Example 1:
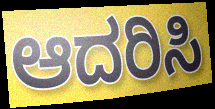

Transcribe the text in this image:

ಆದರಿಸಿ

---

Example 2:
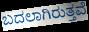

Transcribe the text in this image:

ಬದಲಾಗಿರುತ್ತವೆ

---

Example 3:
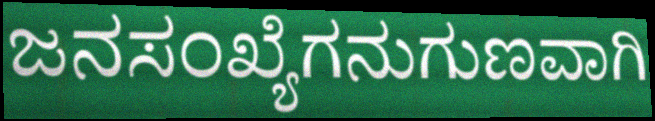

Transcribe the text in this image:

ಜನಸಂಖ್ಯೆಗನುಗುಣವಾಗಿ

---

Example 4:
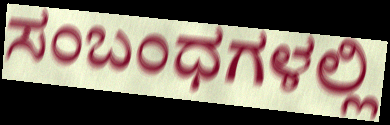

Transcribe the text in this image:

ಸಂಬಂಧಗಳಲ್ಲಿ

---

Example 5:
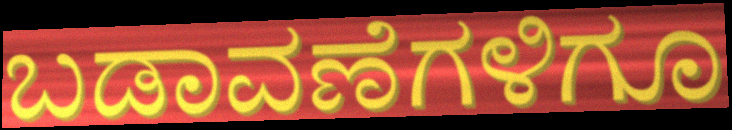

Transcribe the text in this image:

ಬಡಾವಣೆಗಳಿಗೂ